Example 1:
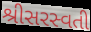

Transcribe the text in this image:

શ્રીસરસ્વતી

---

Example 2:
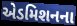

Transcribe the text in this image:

એડમિશનના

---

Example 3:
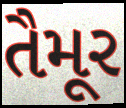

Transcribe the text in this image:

તૈમૂર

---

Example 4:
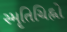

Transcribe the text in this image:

સ્મૃતિચિહ્નો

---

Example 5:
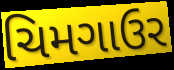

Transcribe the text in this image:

ચિમગાઉર